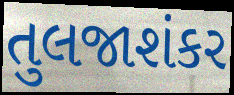
તુલજાશંકર